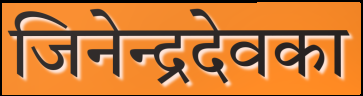
जिनेन्द्रदेवका